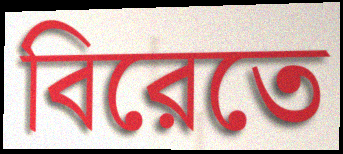
বিরেতে